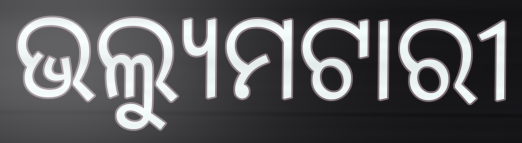
ଭଲ୍ୟୁମଟାରୀ